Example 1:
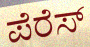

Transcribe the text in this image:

ಪೆರೆಸ್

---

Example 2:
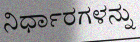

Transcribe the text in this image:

ನಿರ್ಧಾರಗಳನ್ನು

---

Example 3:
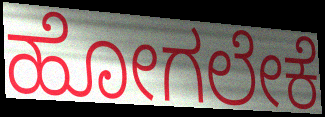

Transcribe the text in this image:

ಹೋಗಲೇಕೆ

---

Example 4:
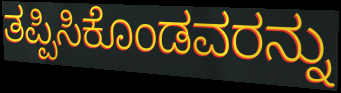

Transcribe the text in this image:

ತಪ್ಪಿಸಿಕೊಂಡವರನ್ನು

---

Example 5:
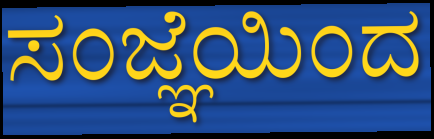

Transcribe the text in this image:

ಸಂಜ್ಞೆಯಿಂದ